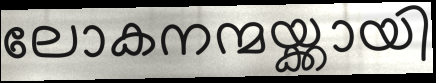
ലോകനന്മയ്ക്കായി